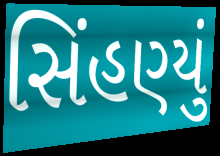
સિંહણ્યું